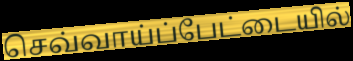
செவ்வாய்ப்பேட்டையில்